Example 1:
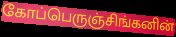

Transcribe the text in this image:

கோப்பெருஞ்சிங்கனின்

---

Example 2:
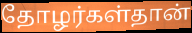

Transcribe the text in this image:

தோழர்கள்தான்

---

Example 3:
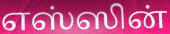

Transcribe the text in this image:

எஸ்ஸின்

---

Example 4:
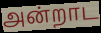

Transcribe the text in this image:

அன்றாட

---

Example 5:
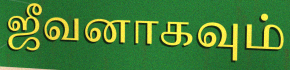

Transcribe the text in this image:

ஜீவனாகவும்